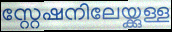
സ്റ്റേഷനിലേയ്ക്കുള്ള